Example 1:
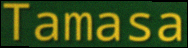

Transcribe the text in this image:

Tamasa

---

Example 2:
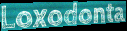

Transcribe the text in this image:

Loxodonta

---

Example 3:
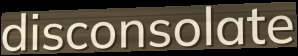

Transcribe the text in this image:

disconsolate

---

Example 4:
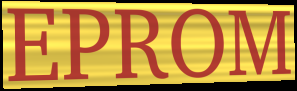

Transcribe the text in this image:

EPROM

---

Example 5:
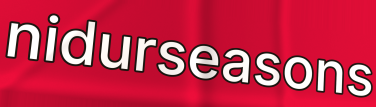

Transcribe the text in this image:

nidurseasons